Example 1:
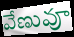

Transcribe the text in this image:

వేణువూ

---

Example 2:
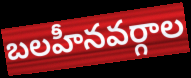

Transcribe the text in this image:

బలహీనవర్గాల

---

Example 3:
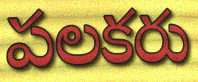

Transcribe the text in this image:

పలకరు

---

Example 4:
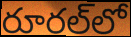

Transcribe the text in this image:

రూరల్‌లో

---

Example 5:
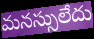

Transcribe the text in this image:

మనస్సులేదు